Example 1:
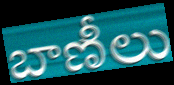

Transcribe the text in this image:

బాణీలు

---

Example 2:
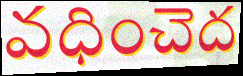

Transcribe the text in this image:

వధించెద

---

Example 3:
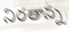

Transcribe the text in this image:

నిరతాన్న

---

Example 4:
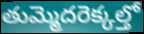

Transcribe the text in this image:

తుమ్మెదరెక్కల్తో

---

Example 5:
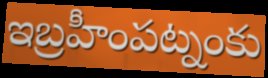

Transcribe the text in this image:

ఇబ్రహీంపట్నంకు